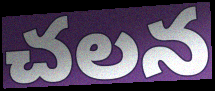
చలన